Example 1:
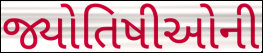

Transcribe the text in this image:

જ્યોતિષીઓની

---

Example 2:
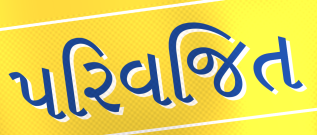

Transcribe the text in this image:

પરિવજિત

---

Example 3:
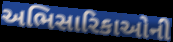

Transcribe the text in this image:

અભિસારિકાઓની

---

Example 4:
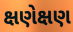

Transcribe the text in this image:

ક્ષણેક્ષણ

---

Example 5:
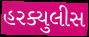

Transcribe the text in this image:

હરક્યુલીસ